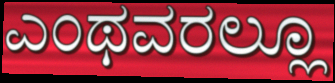
ಎಂಥವರಲ್ಲೂ